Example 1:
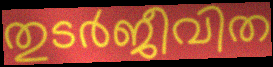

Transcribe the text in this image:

തുടർജീവിത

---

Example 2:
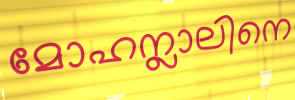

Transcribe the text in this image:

മോഹന്ലാലിനെ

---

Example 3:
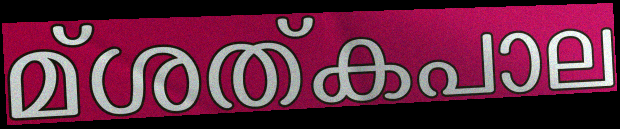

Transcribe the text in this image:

മ്ശത്കപാല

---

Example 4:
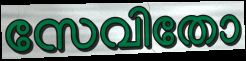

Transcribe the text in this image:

സേവിതോ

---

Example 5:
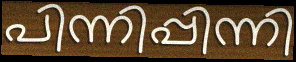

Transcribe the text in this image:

പിന്നിപ്പിന്നി